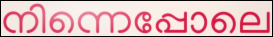
നിന്നെപ്പോലെ